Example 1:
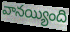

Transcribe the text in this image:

వానయ్యింది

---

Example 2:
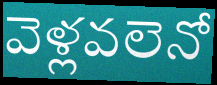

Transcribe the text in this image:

వెళ్లవలెనో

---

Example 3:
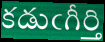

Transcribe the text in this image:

కడుఁగీర్తి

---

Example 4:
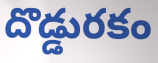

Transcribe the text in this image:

దొడ్డురకం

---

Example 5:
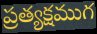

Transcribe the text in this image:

ప్రత్యక్షముగ